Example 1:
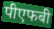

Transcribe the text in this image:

पीएफबी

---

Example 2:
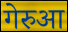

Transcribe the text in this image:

गेरुआ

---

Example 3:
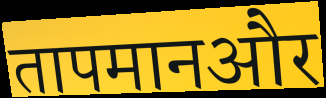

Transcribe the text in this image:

तापमानऔर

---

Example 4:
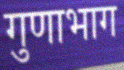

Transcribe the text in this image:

गुणाभाग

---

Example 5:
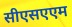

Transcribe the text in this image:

सीएसएएम